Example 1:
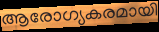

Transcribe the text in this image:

ആരോഗ്യകരമായി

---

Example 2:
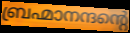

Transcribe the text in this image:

ബ്രഹ്മാനന്ദന്റെ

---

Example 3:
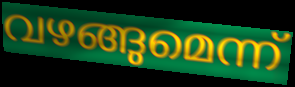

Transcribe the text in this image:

വഴങ്ങുമെന്ന്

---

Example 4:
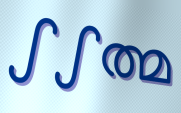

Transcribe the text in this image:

ഽഽത്മ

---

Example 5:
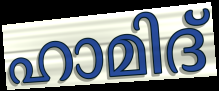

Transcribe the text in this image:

ഹാമിദ്